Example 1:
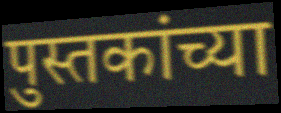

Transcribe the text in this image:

पुस्तकांच्या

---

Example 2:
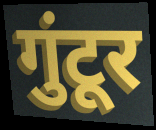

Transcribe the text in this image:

गुंटूर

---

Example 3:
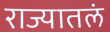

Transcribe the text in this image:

राज्यातलं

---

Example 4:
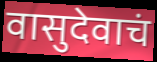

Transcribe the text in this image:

वासुदेवाचं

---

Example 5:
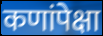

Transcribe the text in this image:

कणांपेक्षा